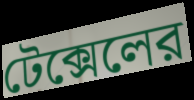
টেক্সেলের